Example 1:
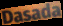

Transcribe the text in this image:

Dasada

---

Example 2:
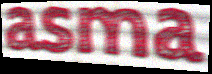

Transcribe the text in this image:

asma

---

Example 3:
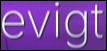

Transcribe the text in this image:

evigt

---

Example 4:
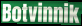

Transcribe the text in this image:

Botvinnik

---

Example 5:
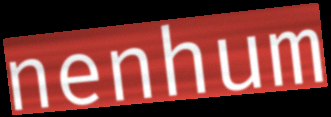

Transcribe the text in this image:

nenhum